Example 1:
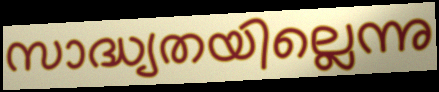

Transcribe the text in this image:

സാദ്ധ്യതയില്ലെന്നു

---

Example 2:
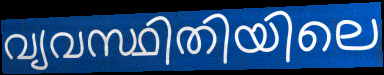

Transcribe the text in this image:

വ്യവസ്ഥിതിയിലെ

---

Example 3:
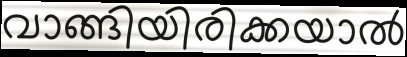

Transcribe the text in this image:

വാങ്ങിയിരിക്കയാൽ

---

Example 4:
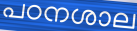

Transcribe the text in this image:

പഠനശാല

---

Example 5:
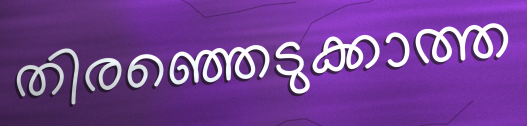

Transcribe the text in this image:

തിരഞ്ഞെടുക്കാത്ത